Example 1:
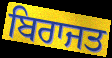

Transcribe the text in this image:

ਬਿਰਾਜਤ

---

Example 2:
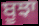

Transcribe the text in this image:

ਬੂਝਾ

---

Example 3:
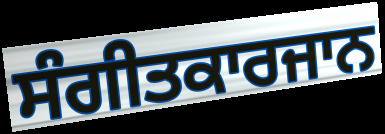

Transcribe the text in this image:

ਸੰਗੀਤਕਾਰਜਾਨ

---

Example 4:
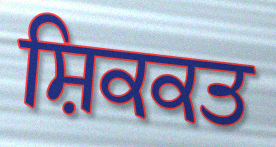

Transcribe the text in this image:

ਸ਼ਿਕਕਤ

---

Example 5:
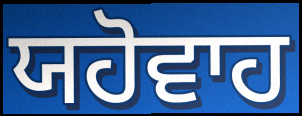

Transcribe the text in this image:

ਯਹੋਵਾਹ